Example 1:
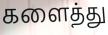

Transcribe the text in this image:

களைத்து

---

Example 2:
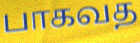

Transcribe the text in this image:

பாகவத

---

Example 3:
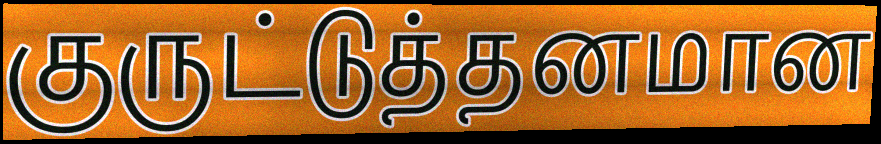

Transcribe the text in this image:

குருட்டுத்தனமான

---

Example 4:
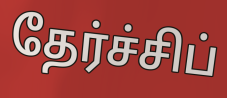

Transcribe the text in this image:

தேர்ச்சிப்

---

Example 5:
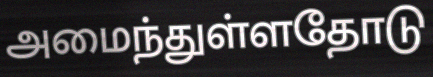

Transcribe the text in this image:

அமைந்துள்ளதோடு